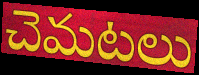
చెమటలు